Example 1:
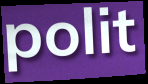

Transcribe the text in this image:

polit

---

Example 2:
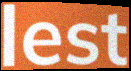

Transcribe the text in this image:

lest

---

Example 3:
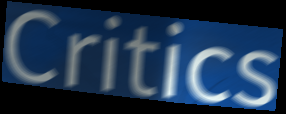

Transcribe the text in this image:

Critics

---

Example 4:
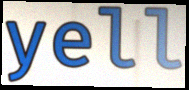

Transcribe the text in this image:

yell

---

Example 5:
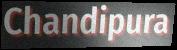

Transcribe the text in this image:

Chandipura